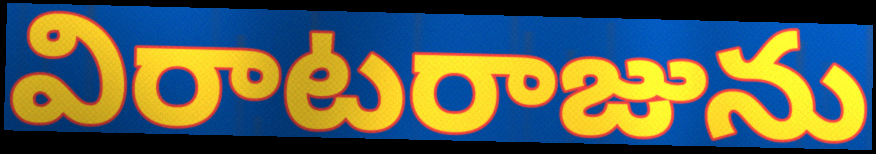
విరాటరాజును